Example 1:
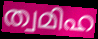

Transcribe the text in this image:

ത്വമിഹ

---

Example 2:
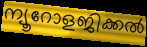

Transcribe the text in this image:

ന്യൂറോളജിക്കൽ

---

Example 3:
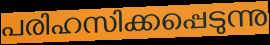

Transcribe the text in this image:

പരിഹസിക്കപ്പെടുന്നു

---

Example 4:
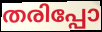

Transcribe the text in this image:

തരിപ്പോ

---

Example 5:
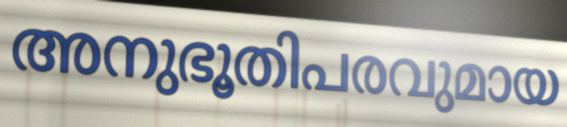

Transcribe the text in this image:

അനുഭൂതിപരവുമായ